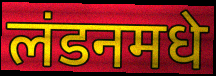
लंडनमधे